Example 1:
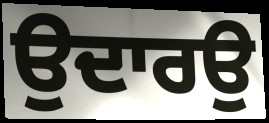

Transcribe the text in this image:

ਉਦਾਰਉ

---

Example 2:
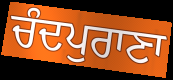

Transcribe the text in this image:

ਚੰਦਪੁਰਾਣਾ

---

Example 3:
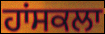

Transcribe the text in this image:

ਹਾਂਸਕਲਾ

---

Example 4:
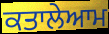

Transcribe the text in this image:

ਕਤਾਲੇਆਮ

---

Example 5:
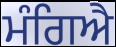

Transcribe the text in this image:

ਮੰਗਿਐ